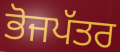
ਭੋਜਪੱਤਰ